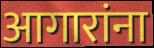
आगारांना